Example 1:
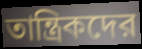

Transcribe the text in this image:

তান্ত্রিকদের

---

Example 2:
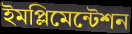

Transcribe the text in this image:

ইমপ্লিমেন্টেশন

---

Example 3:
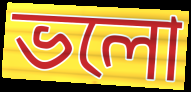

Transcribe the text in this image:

ভলো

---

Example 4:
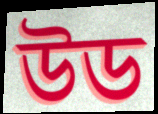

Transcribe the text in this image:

উড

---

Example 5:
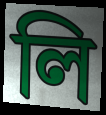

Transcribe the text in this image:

লি